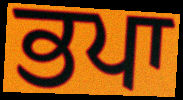
ਭਪਾ